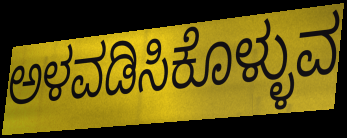
ಅಳವಡಿಸಿಕೊಳ್ಳುವ